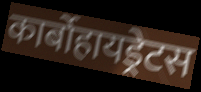
कार्बोहायड्रेटस